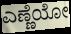
ಎಣ್ಣೆಯೋ